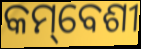
କମ୍‌ବେଶୀ